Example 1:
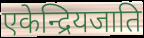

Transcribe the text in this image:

एकेन्द्रियजाति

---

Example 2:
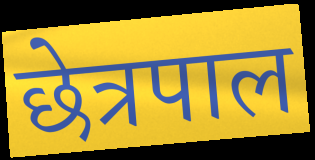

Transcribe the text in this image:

छेत्रपाल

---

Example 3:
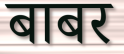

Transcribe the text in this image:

बाबर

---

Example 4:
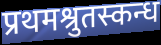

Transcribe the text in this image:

प्रथमश्रुतस्कन्ध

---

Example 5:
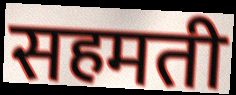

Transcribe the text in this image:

सहमती